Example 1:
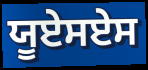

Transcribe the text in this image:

ਯੂਏਸਏਸ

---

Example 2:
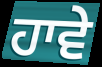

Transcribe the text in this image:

ਹਾਵੇ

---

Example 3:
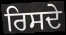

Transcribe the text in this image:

ਰਿਸਦੇ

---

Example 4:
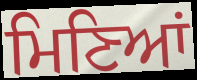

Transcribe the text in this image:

ਮਿਣਿਆਂ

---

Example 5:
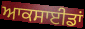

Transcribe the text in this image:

ਆਕਸਾਈਡਾਂ